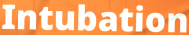
Intubation